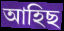
আহিছ